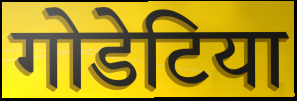
गोडेटिया